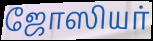
ஜோஸியர்